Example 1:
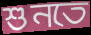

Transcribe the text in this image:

শুনতে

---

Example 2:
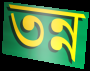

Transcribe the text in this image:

তন্ন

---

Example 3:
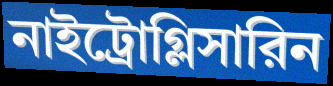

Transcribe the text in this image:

নাইট্রোগ্লিসারিন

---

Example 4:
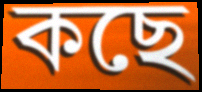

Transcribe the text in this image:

কছে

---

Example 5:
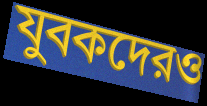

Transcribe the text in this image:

যুবকদেরও